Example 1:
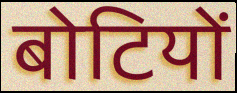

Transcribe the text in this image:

बोटियों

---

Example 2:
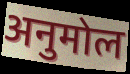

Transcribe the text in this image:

अनुमोल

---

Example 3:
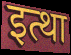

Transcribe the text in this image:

इत्था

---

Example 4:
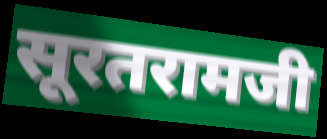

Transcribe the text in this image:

सूरतरामजी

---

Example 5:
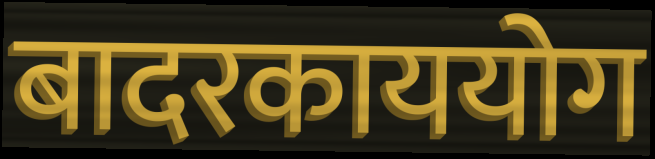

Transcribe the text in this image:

बादरकाययोग